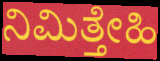
ನಿಮಿತ್ತೇಹಿ